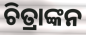
ଚିତ୍ରାଙ୍କନ